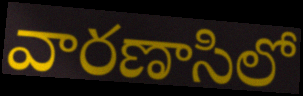
వారణాసిలో